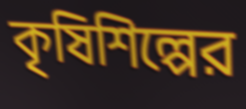
কৃষিশিল্পের